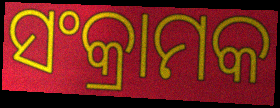
ସଂକ୍ରାମକ